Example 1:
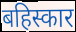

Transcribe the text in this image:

बहिस्कार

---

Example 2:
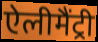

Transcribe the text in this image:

ऐलीमैंट्री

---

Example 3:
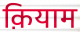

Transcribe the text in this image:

क़ियाम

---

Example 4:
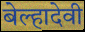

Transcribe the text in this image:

बेल्हादेवी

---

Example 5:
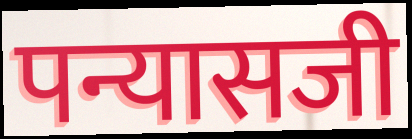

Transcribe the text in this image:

पन्यासजी